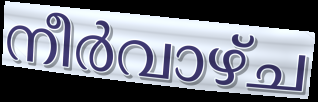
നീർവാഴ്ച